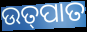
ଉତ୍‌ପାତ